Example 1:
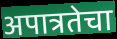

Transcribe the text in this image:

अपात्रतेचा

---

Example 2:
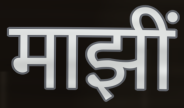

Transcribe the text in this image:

माझीं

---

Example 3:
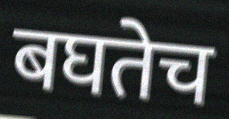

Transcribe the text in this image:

बघतेच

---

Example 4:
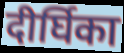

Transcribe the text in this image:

दीर्घिका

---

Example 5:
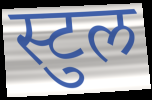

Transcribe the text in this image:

स्टुल